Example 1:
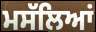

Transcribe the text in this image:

ਮਸੱਲਿਆਂ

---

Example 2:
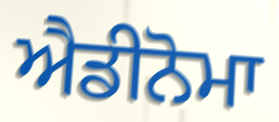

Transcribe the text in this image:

ਐਡੀਨੋਮਾ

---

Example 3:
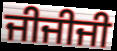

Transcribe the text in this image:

ਜੀਜੀਜੀ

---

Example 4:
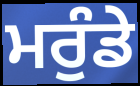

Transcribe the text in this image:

ਮਰੁੰਡੇ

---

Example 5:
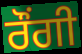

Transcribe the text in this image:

ਰੌਂਗੀ